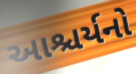
આશ્ચર્યનો